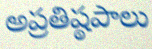
అప్రతిష్ఠపాలు